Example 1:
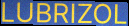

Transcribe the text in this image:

LUBRIZOL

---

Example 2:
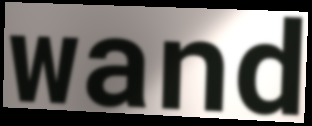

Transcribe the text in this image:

wand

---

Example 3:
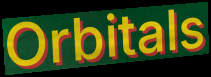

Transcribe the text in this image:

Orbitals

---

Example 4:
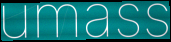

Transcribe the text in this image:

umass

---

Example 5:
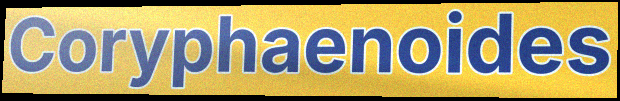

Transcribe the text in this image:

Coryphaenoides